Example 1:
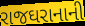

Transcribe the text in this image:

રાજઘરાનાની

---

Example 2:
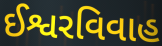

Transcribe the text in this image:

ઈશ્વરવિવાહ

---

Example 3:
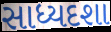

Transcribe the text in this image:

સાધ્યદશા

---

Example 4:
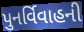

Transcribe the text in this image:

પુનર્વિવાહની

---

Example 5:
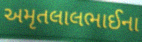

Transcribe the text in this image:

અમૃતલાલભાઈના